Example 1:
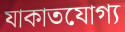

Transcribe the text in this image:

যাকাতযোগ্য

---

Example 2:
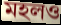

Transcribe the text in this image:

মহলও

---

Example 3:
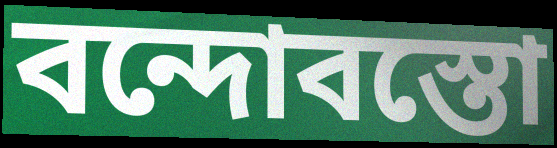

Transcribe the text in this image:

বন্দোবস্তো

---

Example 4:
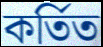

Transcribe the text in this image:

কর্তিত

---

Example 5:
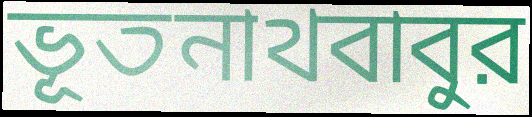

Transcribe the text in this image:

ভূতনাথবাবুর